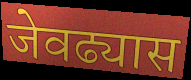
जेवढ्यास